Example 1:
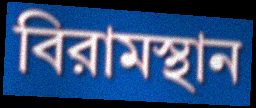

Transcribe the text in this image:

বিরামস্থান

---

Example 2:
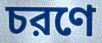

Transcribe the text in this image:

চরণে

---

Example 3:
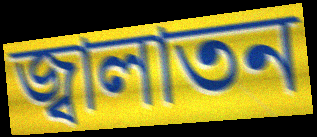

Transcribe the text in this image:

জ্বালাতন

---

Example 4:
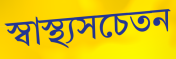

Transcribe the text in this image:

স্বাস্থ্যসচেতন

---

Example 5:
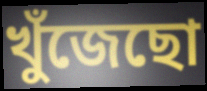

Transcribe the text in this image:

খুঁজেছো